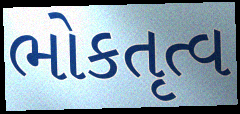
ભોકતૃત્વ